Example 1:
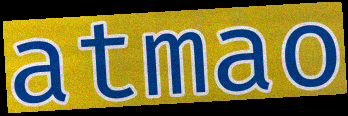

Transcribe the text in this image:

atmao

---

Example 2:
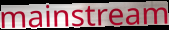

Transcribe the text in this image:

mainstream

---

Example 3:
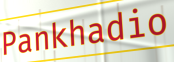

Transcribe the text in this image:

Pankhadio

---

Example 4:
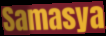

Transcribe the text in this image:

Samasya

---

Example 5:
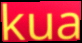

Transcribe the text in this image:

kua